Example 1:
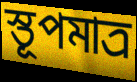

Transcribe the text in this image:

স্তূপমাত্র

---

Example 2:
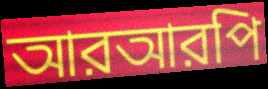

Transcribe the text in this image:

আরআরপি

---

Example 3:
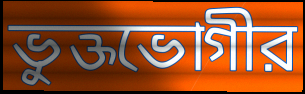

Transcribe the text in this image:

ভুক্তভোগীর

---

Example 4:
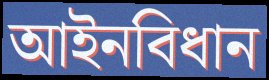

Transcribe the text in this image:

আইনবিধান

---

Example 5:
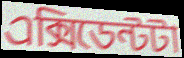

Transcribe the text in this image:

এক্সিডেন্টটা